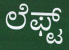
ಲೆಫ್ಟ್